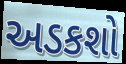
અડકશો